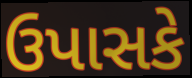
ઉપાસકે